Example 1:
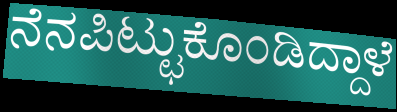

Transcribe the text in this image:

ನೆನಪಿಟ್ಟುಕೊಂಡಿದ್ದಾಳೆ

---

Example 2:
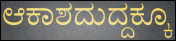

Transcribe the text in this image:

ಆಕಾಶದುದ್ದಕ್ಕೂ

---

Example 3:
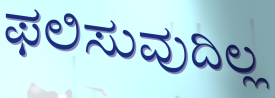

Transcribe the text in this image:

ಫಲಿಸುವುದಿಲ್ಲ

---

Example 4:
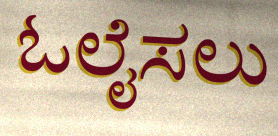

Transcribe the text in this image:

ಓಲೈಸಲು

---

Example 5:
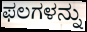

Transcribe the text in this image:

ಫಲಗಳನ್ನು